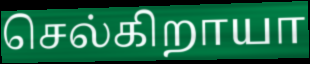
செல்கிறாயா